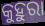
କୁହୁରା